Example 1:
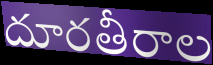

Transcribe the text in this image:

దూరతీరాల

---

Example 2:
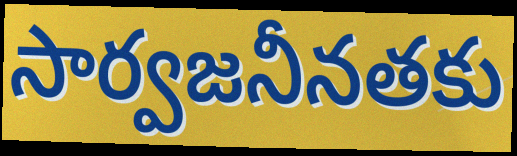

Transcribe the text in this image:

సార్వజనీనతకు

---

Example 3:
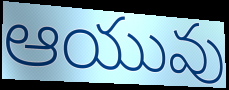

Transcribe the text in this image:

ఆయువు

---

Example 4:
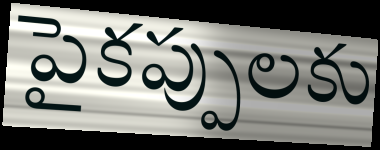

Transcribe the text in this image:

పైకప్పులకు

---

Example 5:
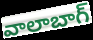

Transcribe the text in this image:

వాలాబాగ్